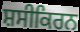
ਸ਼ਸੀਕਿਰਨ